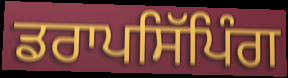
ਡਰਾਪਸਿੱਪਿੰਗ